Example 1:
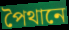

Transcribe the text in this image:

পৈথানে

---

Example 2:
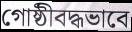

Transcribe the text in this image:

গোষ্ঠীবদ্ধভাবে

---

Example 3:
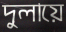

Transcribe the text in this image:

দুলায়ে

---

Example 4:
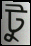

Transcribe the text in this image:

টু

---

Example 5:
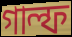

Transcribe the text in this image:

গাল্ফ